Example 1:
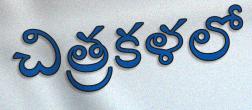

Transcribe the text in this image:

చిత్రకళలో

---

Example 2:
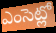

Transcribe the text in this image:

ఎంసెట్లో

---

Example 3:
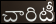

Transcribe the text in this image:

చారిటీ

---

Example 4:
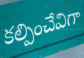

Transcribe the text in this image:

కల్పించేవిగా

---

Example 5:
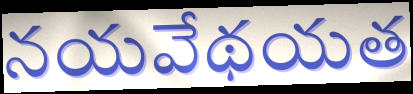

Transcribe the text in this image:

నయవేథయత